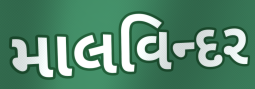
માલવિન્દર